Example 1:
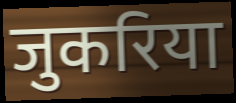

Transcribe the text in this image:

जुकरिया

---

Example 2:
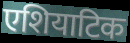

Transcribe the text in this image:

एशियाटिक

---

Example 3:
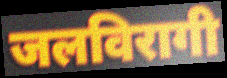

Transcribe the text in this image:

जलविरागी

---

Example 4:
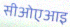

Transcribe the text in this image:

सीओएआइ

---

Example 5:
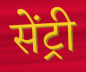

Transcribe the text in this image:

सेंट्री